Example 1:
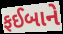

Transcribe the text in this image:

ફઈબાને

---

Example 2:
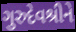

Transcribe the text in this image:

ગુરુદેવશ્રીને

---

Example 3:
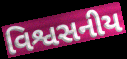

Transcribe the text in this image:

વિશ્વસનીય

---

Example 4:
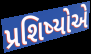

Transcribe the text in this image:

પ્રશિષ્યોએ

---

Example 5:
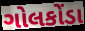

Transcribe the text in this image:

ગોલકોંડા